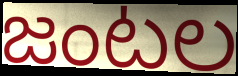
జంటల